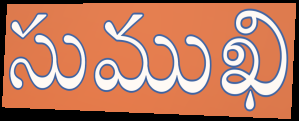
సుముఖి